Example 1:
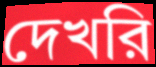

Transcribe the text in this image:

দেখরি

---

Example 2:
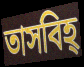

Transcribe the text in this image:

তাসবিহ্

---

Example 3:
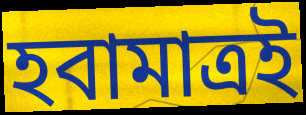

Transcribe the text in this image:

হবামাত্রই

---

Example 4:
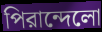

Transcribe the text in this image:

পিরান্দেলো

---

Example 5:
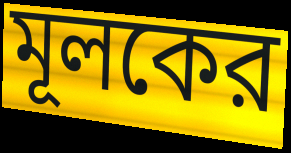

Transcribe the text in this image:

মূলকের